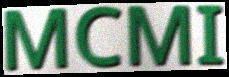
MCMI